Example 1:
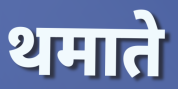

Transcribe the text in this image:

थमाते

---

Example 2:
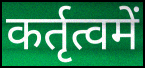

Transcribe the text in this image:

कर्तृत्वमें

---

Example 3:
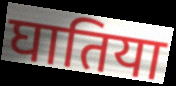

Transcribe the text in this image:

घातिया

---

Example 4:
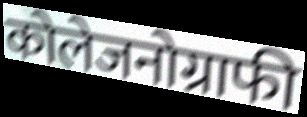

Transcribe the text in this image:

कोलेजनोग्राफी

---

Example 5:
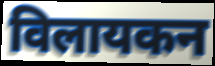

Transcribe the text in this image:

विलायकन